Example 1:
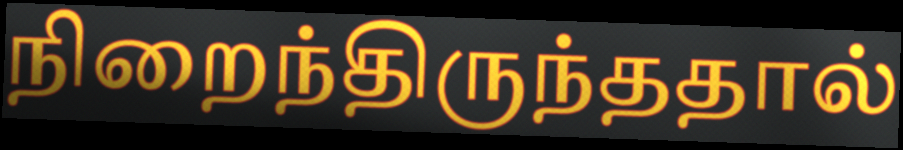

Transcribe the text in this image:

நிறைந்திருந்ததால்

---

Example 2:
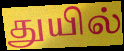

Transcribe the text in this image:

துயில்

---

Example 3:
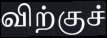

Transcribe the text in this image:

விற்குச்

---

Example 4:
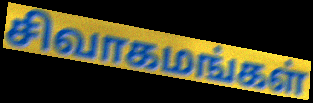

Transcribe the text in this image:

சிவாகமங்கள்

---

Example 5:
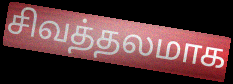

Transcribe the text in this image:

சிவத்தலமாக